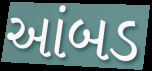
આંબડ